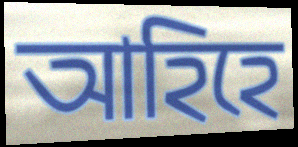
আহিহে